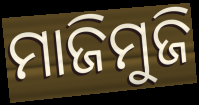
ମାଜିମୁଜି